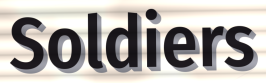
Soldiers